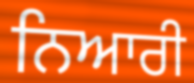
ਨਿਆਰੀ